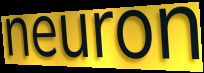
neuron